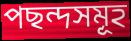
পছন্দসমূহ